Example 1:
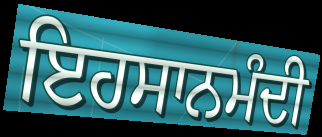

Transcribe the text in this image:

ਇਹਸਾਨਮੰਦੀ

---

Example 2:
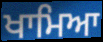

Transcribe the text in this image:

ਖਾਮਿਆ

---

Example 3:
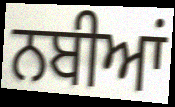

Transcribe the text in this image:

ਨਬੀਆਂ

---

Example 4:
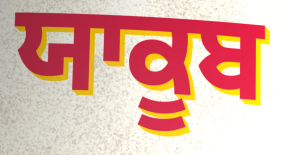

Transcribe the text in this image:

ਯਾਕੂਬ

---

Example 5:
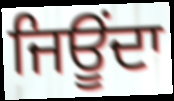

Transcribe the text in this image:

ਜਿਊਂਦਾ